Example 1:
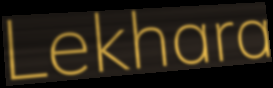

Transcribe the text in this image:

Lekhara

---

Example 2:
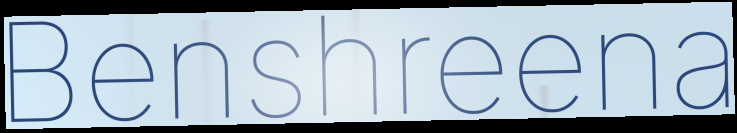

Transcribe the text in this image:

Benshreena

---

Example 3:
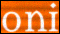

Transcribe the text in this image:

oni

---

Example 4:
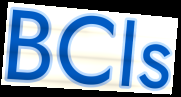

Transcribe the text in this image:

BCIs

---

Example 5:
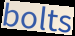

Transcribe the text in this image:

bolts